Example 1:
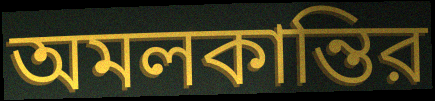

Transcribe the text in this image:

অমলকান্তির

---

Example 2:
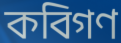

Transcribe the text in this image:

কবিগণ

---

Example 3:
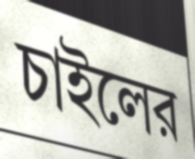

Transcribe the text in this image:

চাইলের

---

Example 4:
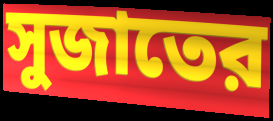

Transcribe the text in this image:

সুজাতের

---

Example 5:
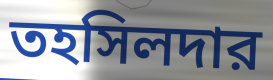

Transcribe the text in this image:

তহসিলদার